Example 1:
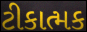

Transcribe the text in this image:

ટીકાત્મક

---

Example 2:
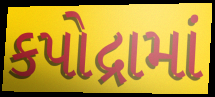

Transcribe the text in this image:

કપોદ્રામાં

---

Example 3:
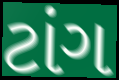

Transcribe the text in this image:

ટાંગ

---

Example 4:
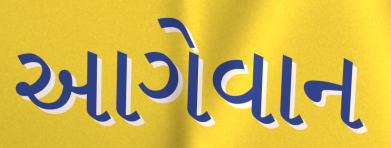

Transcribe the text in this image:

આગેવાન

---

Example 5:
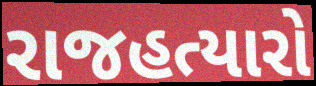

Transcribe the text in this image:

રાજહત્યારો